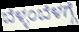
ಬೆಳ್ಳಂಬೆಳಗ್ಗೆ